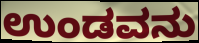
ಉಂಡವನು